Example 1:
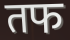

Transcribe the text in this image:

तफ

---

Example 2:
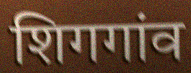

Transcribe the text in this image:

शिगगांव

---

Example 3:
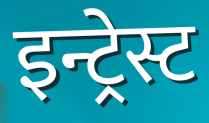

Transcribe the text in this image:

इन्ट्रेस्ट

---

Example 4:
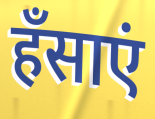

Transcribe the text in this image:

हँसाएं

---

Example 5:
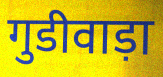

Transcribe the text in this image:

गुडीवाड़ा